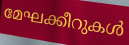
മേഘക്കീറുകൾ